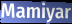
Mamiyar